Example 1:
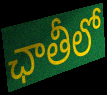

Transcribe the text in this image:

ఛాతీలో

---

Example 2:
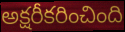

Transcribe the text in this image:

అక్షరీకరించింది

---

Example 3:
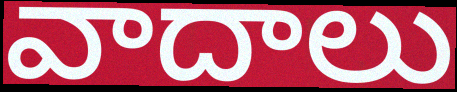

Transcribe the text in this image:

వాదాలు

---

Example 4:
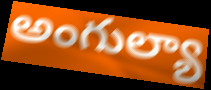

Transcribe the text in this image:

అంగుల్యా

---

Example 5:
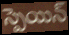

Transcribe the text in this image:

స్పెయిన్